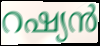
റഷ്യൻ